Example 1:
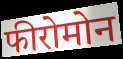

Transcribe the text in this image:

फीरोमोन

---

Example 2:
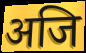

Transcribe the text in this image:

अजि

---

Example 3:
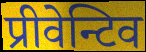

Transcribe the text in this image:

प्रीवेन्टिव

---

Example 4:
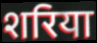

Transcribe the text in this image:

शरिया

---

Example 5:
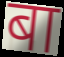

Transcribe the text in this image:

बा